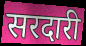
सरदारी